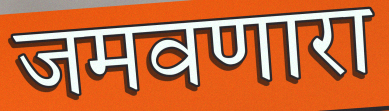
जमवणारा